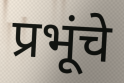
प्रभूंचे